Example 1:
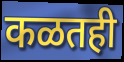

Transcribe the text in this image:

कळतही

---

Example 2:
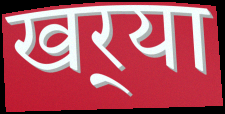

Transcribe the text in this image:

खर्या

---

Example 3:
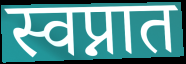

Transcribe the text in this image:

स्वप्नात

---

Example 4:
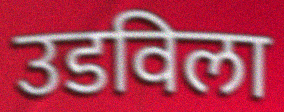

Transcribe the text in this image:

उडविला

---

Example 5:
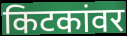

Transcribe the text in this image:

किटकांवर